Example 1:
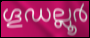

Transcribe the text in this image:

ഗൂഡല്ലൂർ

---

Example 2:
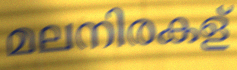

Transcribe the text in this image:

മലനിരകള്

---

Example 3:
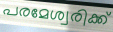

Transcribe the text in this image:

പരമേശ്വരിക്ക്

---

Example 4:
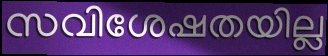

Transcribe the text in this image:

സവിശേഷതയില്ല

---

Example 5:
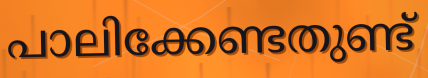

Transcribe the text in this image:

പാലിക്കേണ്ടതുണ്ട്